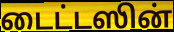
டைட்டஸின்